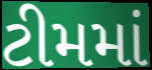
ટીમમાં